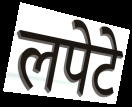
लपेटे